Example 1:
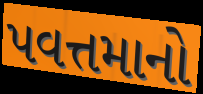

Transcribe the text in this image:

પવત્તમાનો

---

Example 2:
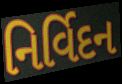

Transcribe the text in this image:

નિર્વિદન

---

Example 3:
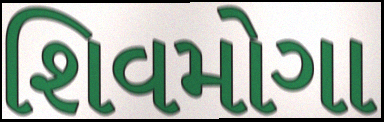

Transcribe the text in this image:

શિવમોગા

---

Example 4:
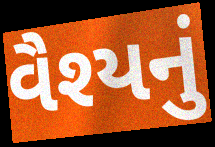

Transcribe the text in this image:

વૈશ્યનું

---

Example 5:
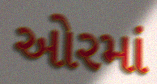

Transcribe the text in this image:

ઓરમાં